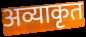
अव्याकृत